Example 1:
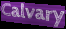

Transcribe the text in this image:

Calvary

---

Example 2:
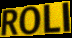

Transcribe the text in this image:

ROLI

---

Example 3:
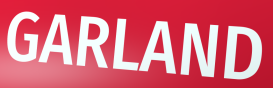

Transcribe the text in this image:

GARLAND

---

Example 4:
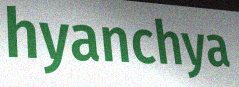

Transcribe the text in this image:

hyanchya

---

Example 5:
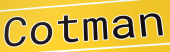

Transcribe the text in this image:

Cotman